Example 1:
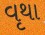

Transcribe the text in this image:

વૃથા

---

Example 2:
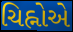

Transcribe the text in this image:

ચિહ્નોએ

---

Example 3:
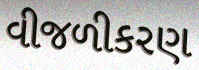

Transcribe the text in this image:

વીજળીકરણ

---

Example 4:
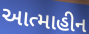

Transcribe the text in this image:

આત્માહીન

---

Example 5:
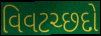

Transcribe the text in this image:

વિવટચ્છદો